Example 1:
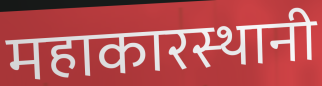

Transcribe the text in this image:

महाकारस्थानी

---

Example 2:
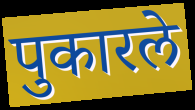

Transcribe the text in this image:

पुकारले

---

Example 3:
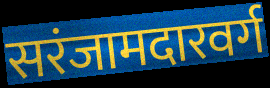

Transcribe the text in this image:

सरंजामदारवर्ग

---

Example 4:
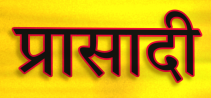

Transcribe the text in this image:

प्रासादी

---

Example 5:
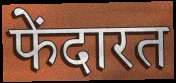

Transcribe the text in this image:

फेंदारत